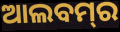
ଆଲବମ୍‌ର